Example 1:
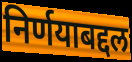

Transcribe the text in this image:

निर्णयाबद्दल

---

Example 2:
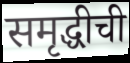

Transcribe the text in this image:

समृद्धीची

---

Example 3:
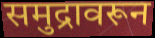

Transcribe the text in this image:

समुद्रावरून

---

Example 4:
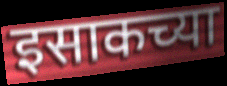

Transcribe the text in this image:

इसाकच्या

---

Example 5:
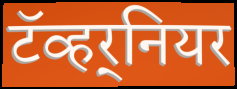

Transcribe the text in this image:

टॅव्हर्नियर